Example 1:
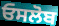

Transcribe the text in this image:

ਓਸਲੋਬ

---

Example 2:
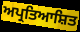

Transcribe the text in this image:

ਅਪ੍ਰਤਿਆਸ਼ਿਤ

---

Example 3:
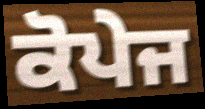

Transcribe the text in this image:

ਕੋਪੇਜ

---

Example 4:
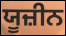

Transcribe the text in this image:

ਯੂਜ਼ੀਨ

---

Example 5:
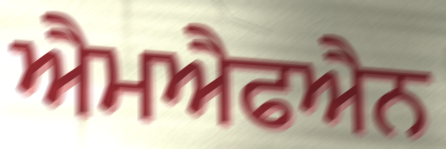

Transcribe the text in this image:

ਐਮਐਫਐਨ